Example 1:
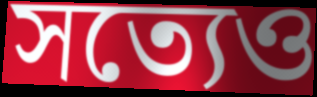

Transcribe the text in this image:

সত্যেও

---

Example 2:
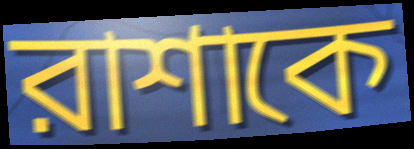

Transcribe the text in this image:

রাশাকে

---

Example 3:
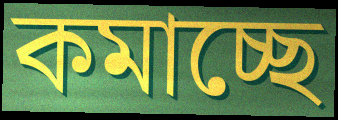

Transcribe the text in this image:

কমাচ্ছে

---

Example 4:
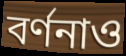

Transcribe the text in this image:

বর্ণনাও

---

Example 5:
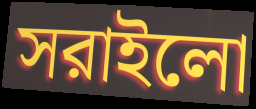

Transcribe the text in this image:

সরাইলো